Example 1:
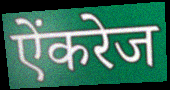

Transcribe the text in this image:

ऐंकरेज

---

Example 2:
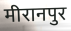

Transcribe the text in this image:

मीरानपुर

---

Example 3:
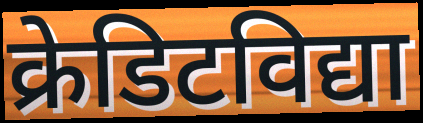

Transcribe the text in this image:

क्रेडिटविद्या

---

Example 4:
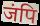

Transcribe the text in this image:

जंपि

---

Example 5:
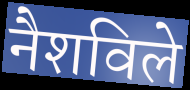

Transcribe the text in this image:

नैशविले